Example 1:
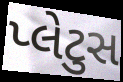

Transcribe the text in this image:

પ્લેટુસ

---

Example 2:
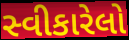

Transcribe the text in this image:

સ્વીકારેલો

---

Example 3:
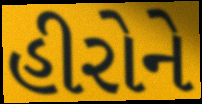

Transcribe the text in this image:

હીરોને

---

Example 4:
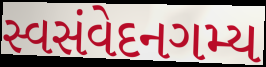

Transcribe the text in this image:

સ્વસંવેદનગમ્ય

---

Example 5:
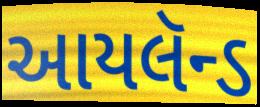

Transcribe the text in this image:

આયલૅન્ડ